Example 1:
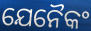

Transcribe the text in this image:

ଯେନୈକଂ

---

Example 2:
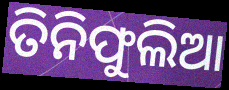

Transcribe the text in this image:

ତିନିଫୁଲିଆ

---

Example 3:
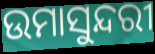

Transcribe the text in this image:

ଉମାସୁନ୍ଦରୀ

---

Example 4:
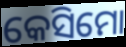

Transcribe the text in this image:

କେସିମୋ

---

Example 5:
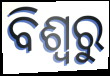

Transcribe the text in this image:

ବିଶ୍ଵରୁ